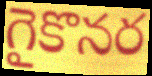
గైకొనర